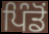
ਪਿੰਡੋਂ